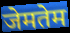
जेमतेम